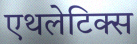
एथलेटिक्स